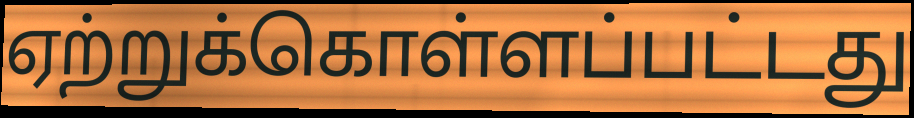
ஏற்றுக்கொள்ளப்பட்டது